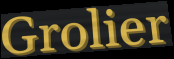
Grolier